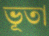
ভূতা